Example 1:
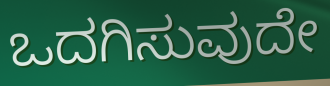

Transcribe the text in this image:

ಒದಗಿಸುವುದೇ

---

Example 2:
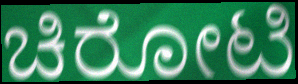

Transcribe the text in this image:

ಚಿರೋಟಿ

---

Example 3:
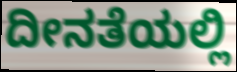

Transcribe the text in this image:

ದೀನತೆಯಲ್ಲಿ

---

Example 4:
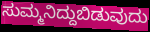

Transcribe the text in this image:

ಸುಮ್ಮನಿದ್ದುಬಿಡುವುದು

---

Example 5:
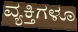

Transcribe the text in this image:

ವ್ಯಕ್ತಿಗಳೂ